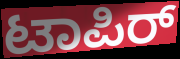
ಟಾಪಿರ್